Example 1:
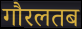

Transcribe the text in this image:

गौरलतब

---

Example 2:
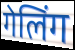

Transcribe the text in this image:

गेलिंग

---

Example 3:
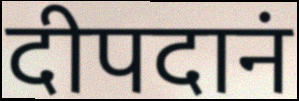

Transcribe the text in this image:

दीपदानं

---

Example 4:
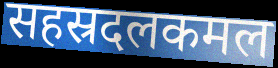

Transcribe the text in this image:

सहस्रदलकमल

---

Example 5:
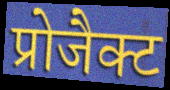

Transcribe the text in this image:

प्रोजैक्ट